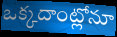
ఒక్కదాంట్లోనూ